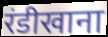
रंडीखाना